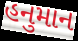
હનુમાન